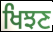
ਖਿਝਣ